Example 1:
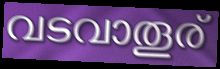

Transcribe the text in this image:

വടവാതൂര്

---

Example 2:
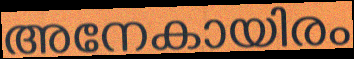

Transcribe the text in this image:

അനേകായിരം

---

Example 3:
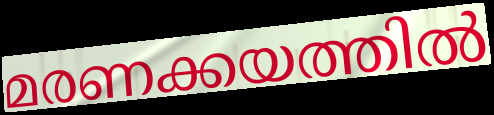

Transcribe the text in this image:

മരണക്കയത്തിൽ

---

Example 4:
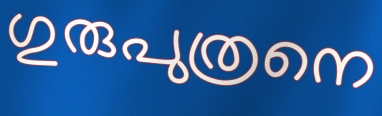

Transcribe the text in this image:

ഗുരുപുത്രനെ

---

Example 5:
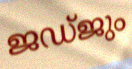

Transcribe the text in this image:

ജഡ്ജും